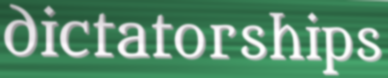
dictatorships